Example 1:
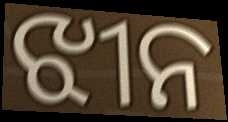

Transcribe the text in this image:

ଝୀନ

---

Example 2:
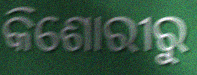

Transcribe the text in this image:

କିଶୋରୀରୁ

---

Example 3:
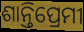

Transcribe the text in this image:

ଶାନ୍ତିପ୍ରେମୀ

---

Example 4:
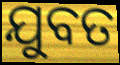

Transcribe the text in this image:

ଯୁବତ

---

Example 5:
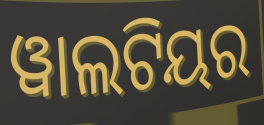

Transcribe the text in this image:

ୱାଲଟିୟର